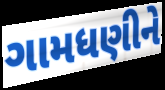
ગામધણીને